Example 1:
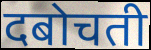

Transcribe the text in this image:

दबोचती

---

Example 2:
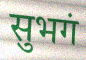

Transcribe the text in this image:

सुभगं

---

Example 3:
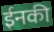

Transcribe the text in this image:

ईनकी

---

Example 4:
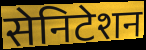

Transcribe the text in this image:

सेनिटेशन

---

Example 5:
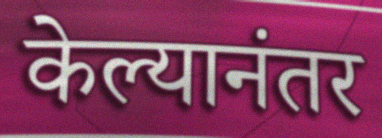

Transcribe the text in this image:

केल्यानंतर